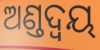
ଅଣ୍ଡଦ୍ୱୟ